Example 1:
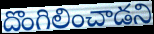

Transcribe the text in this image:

దొంగిలించాడని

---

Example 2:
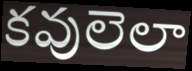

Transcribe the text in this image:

కవులెలా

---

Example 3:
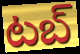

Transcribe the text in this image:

టబ్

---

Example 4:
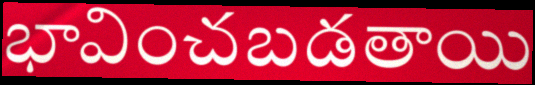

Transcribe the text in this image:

భావించబడతాయి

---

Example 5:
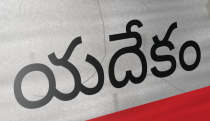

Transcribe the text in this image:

యదేకం